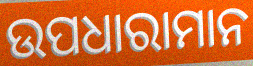
ଉପଧାରାମାନ